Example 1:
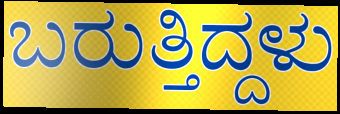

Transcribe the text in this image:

ಬರುತ್ತಿದ್ದಳು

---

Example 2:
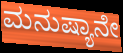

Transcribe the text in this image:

ಮನುಷ್ಯಾನೇ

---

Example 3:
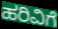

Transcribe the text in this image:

ಹರಿವಿಗೆ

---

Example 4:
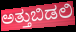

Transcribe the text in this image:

ಅತ್ತುಬಿಡಲಿ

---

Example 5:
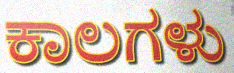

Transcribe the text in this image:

ಕಾಲಗಳು